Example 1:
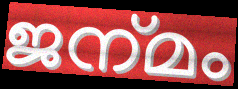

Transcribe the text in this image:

ജന്‌മം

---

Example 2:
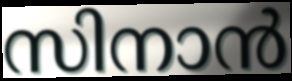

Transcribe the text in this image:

സിനാൻ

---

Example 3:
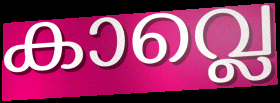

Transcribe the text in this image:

കാവ്ലെ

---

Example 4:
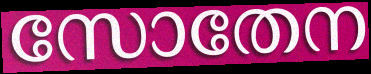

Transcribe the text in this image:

സോതേന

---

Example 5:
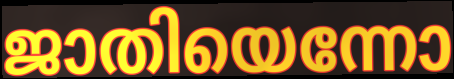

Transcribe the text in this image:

ജാതിയെന്നോ